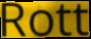
Rott